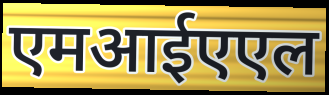
एमआईएएल